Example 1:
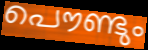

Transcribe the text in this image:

പൌണ്ടും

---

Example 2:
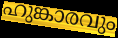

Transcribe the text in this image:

ഹുങ്കാരവും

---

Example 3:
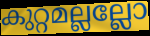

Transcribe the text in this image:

കുറ്റമല്ലല്ലോ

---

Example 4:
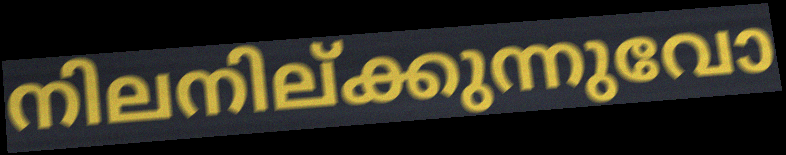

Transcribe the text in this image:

നിലനില്ക്കുന്നുവോ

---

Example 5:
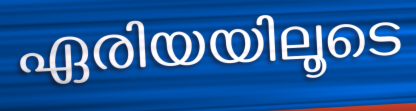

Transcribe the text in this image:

ഏരിയയിലൂടെ